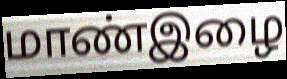
மாண்இழை